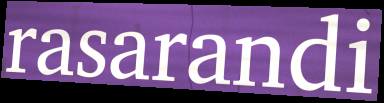
rasarandi